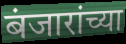
बंजारांच्या